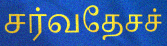
சர்வதேசச்